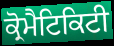
ਕ੍ਰੋਮੈਟਿਕਿਟੀ